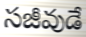
సజీవుడే